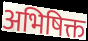
अभिषिक्त